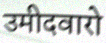
उमीदवारो